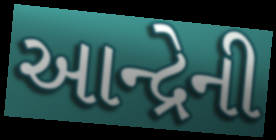
આન્દ્રેની